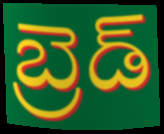
బ్రెడ్